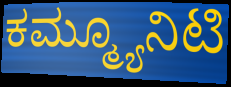
ಕಮ್ಮ್ಯೂನಿಟಿ